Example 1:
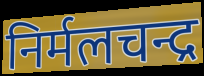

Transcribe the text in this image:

निर्मलचन्द्र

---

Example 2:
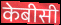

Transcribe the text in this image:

केबीसी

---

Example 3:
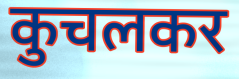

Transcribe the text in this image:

कुचलकर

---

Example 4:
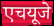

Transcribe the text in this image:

एचयूजे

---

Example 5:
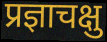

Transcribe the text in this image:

प्रज्ञाचक्षु